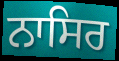
ਨਾਸਿਰ